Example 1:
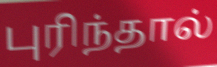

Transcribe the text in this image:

புரிந்தால்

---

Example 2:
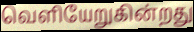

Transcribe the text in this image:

வெளியேறுகின்றது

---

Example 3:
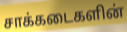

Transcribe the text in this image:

சாக்கடைகளின்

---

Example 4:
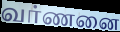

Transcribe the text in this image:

வர்ணனை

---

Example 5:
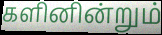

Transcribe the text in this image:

களினின்றும்